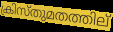
ക്രിസ്തുമതത്തില്